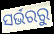
ସର୍ଭରରୁ